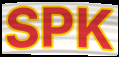
SPK